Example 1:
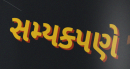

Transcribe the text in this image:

સમ્યક્પણે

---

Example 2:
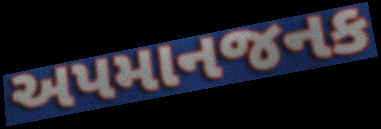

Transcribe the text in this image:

અપમાનજનક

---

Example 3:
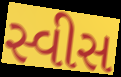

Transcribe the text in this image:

સ્વીસ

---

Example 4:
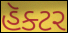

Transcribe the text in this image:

હૅક્ટર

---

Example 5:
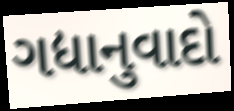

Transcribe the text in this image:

ગદ્યાનુવાદો